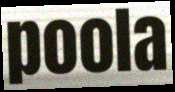
poola